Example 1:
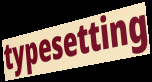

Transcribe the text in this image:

typesetting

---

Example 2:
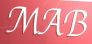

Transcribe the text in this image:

MAB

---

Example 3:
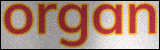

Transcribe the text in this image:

organ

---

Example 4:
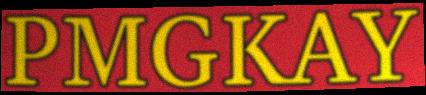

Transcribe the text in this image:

PMGKAY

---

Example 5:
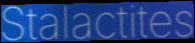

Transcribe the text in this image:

Stalactites